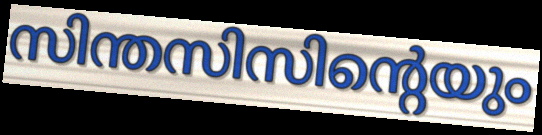
സിന്തസിസിന്റെയും